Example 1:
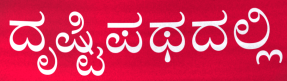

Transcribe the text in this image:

ದೃಷ್ಟಿಪಥದಲ್ಲಿ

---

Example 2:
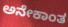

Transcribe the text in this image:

ಅನೇಕಾಂತ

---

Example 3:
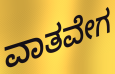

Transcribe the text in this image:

ವಾತವೇಗ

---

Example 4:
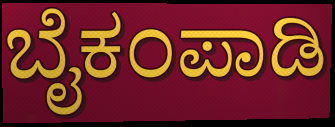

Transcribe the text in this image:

ಬೈಕಂಪಾಡಿ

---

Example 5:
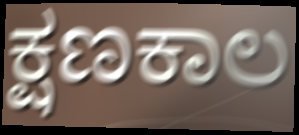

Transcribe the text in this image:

ಕ್ಷಣಕಾಲ